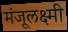
मंजूलक्ष्मी